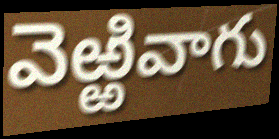
వెఱ్ఱివాగు